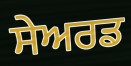
ਸੇਅਰਡ